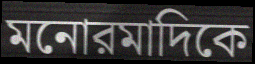
মনোরমাদিকে